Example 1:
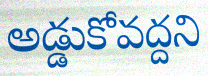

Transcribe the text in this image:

అడ్డుకోవద్దని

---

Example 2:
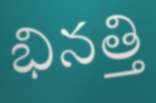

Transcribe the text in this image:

భినత్తి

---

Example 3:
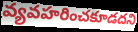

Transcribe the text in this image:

వ్యవహరించకూడదని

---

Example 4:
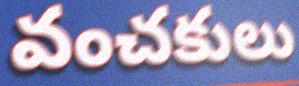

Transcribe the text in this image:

వంచకులు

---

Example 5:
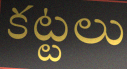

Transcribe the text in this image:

కట్టలు